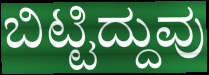
ಬಿಟ್ಟಿದ್ದುವು